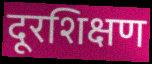
दूरशिक्षण